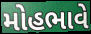
મોહભાવે